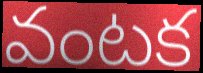
వంటక